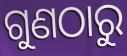
ଗୁଣଠାରୁ